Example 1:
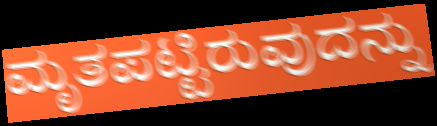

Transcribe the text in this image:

ಮೃತಪಟ್ಟಿರುವುದನ್ನು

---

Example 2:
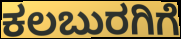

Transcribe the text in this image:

ಕಲಬುರಗಿಗೆ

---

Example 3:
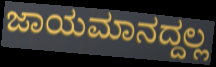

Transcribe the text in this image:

ಜಾಯಮಾನದ್ದಲ್ಲ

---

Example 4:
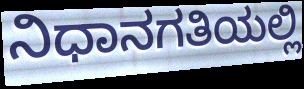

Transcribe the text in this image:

ನಿಧಾನಗತಿಯಲ್ಲಿ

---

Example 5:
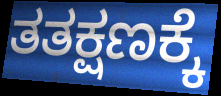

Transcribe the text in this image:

ತತಕ್ಷಣಕ್ಕೆ